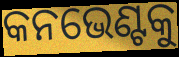
କନଭେଣ୍ଟକୁ